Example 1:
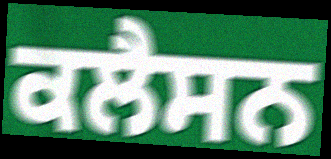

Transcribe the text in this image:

ਕਲੈਸਨ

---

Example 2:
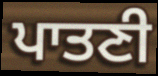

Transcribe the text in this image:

ਪਾਤਣੀ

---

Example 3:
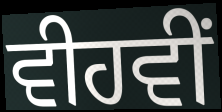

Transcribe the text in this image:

ਵੀਹਵੀਂ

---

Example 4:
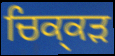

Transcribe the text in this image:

ਚਿਕ੍ਕੜ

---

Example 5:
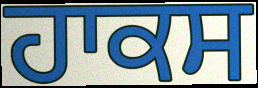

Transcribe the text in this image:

ਹਾਕਸ